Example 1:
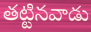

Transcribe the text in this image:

తట్టినవాడు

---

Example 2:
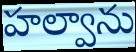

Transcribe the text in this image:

హల్వాను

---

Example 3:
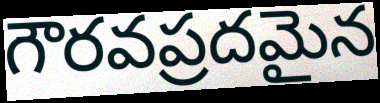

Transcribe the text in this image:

గౌరవప్రదమైన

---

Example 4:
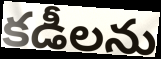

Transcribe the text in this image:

కడీలను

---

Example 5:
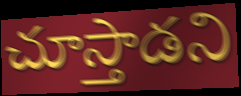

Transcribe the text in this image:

చూస్తాడని